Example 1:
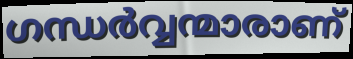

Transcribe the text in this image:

ഗന്ധർവ്വന്മാരാണ്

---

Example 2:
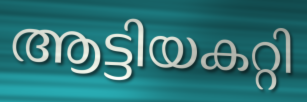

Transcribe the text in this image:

ആട്ടിയകറ്റി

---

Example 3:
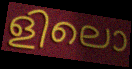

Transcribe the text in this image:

ളിലൊ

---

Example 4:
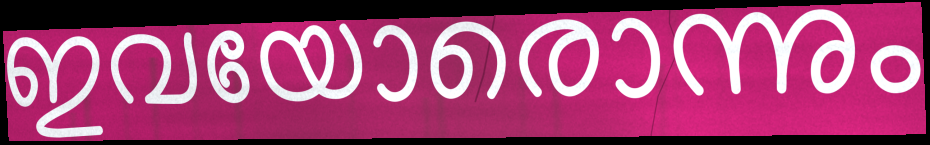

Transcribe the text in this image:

ഇവയോരൊന്നും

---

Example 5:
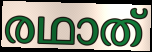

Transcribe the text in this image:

രഥാത്